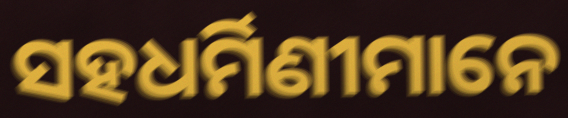
ସହଧର୍ମିଣୀମାନେ